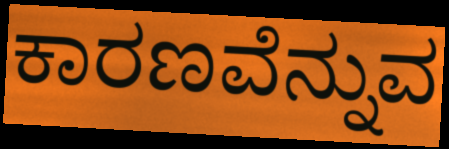
ಕಾರಣವೆನ್ನುವ